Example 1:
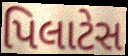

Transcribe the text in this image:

પિલાટેસ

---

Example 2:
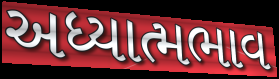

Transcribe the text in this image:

અધ્યાત્મભાવ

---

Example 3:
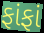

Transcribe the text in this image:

ફાંફાં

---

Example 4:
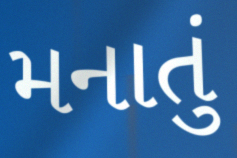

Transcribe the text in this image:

મનાતું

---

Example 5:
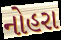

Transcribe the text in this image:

નોહરા